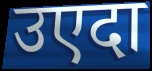
उएदा